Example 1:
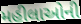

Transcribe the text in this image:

મહીલાઓની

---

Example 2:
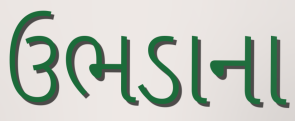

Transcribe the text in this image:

ઉભડાના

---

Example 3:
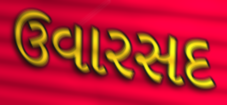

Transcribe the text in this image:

ઉવારસદ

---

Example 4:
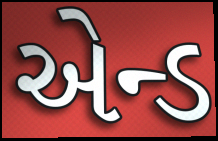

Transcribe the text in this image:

એન્ડ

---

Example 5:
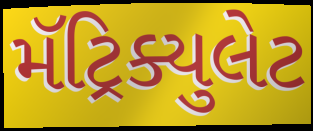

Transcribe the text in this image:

મૅટ્રિક્યુલેટ